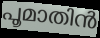
പൂമാതിൻ